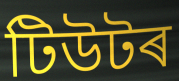
টিউটৰ